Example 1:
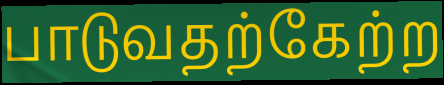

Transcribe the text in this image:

பாடுவதற்கேற்ற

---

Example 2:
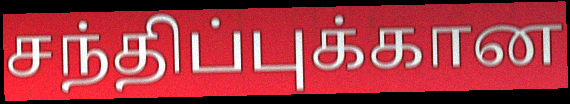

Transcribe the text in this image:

சந்திப்புக்கான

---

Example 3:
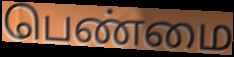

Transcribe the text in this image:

பெண்மை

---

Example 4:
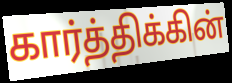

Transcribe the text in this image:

கார்த்திக்கின்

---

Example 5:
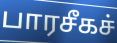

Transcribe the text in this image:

பாரசீகச்